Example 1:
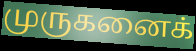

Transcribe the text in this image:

முருகனைக்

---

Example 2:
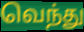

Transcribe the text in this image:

வெந்து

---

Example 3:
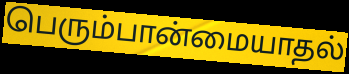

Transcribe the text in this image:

பெரும்பான்மையாதல்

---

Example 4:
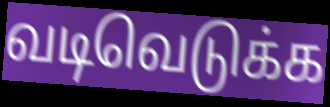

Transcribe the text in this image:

வடிவெடுக்க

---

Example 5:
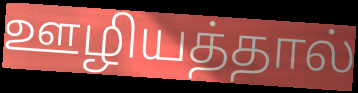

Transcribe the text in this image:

ஊழியத்தால்